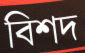
বিশদ